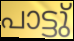
പാട്ടു്